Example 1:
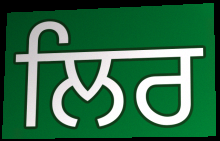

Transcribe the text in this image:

ਲਿਰ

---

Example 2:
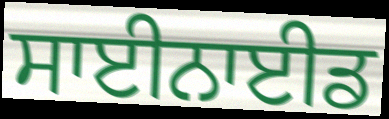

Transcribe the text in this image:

ਸਾਈਨਾਈਡ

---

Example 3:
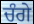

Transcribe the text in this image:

ਚੰਗੇ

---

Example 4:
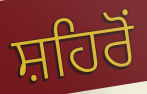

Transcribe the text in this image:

ਸ਼ਹਿਰੋਂ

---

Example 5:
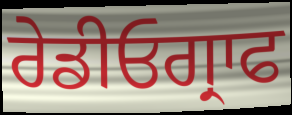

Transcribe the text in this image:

ਰੇਡੀਓਗ੍ਰਾਫ